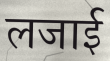
लजाई